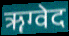
ॠग्वेद